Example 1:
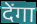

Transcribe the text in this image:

देंगा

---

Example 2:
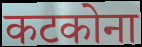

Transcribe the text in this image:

कटकोना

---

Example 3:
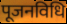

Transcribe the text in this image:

पूजनविधि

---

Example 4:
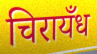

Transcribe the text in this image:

चिरायँध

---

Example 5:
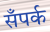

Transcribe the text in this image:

सँपर्क